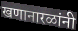
खणानारळांनी